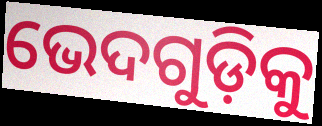
ଭେଦଗୁଡ଼ିକୁ